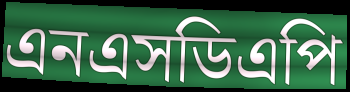
এনএসডিএপি